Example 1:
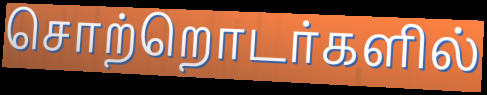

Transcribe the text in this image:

சொற்றொடர்களில்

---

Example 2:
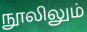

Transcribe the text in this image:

நூலிலும்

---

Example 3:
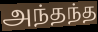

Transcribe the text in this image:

அந்தந்த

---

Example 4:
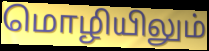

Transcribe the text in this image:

மொழியிலும்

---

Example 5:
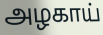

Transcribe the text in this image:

அழகாய்